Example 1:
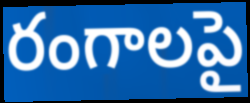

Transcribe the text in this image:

రంగాలపై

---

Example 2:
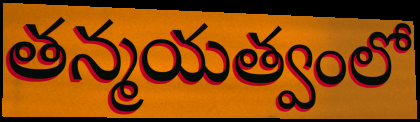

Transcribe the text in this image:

తన్మయత్వంలో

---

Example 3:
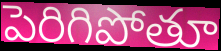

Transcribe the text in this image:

పెరిగిపోతూ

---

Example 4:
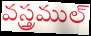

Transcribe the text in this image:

వస్త్రముల్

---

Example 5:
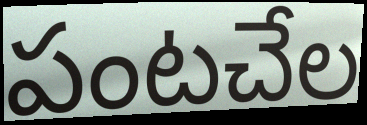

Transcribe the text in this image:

పంటచేల